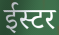
ईस्टर